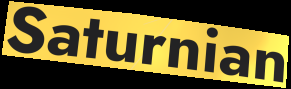
Saturnian